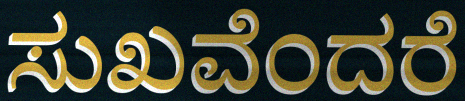
ಸುಖವೆಂದರೆ